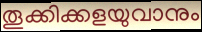
തൂക്കിക്കളയുവാനും